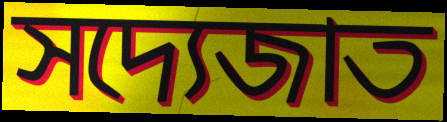
সদ্যেজাত